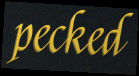
pecked